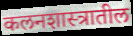
कलनशास्त्रातील